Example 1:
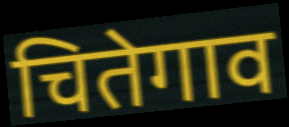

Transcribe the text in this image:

चितेगाव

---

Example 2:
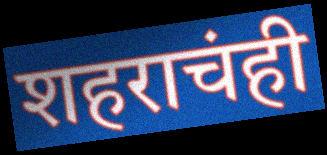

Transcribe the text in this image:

शहराचंही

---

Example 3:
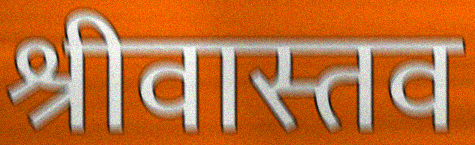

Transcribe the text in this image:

श्रीवास्तव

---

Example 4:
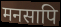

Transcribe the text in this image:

मनसापि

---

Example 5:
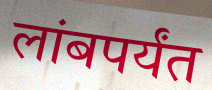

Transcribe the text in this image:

लांबपर्यंत